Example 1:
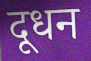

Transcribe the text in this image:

दूधन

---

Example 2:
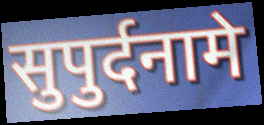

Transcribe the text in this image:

सुपुर्दनामे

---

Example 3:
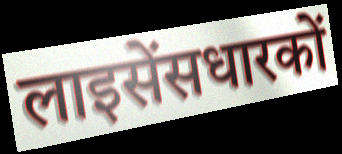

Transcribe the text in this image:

लाइसेंसधारकों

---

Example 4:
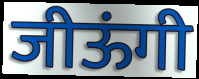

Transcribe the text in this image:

जीऊंगी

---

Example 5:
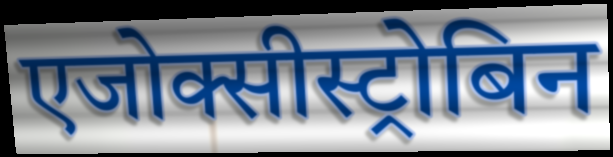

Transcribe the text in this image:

एजोक्सीस्ट्रोबिन